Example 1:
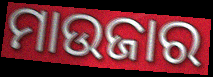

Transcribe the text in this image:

ମାଉଜାର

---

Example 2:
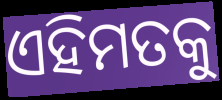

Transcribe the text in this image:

ଏହିମତକୁ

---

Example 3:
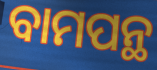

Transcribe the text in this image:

ବାମପନ୍ଥ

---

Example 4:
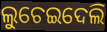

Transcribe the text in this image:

ଲୁଚେଇଦେଲି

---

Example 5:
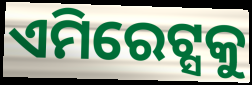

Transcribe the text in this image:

ଏମିରେଟ୍ସକୁ